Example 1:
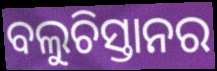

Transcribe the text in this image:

ବଲୁଚିସ୍ତାନର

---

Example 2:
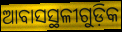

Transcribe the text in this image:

ଆବାସସ୍ଥଳୀଗୁଡ଼ିକ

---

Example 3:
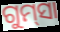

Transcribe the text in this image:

ଗୁମ୍‌ସା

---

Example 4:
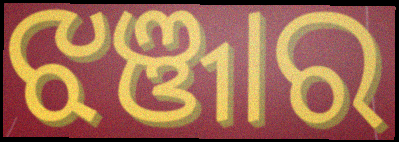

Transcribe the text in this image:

ଝଞ୍ଜାର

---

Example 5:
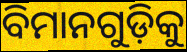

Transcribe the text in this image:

ବିମାନଗୁଡ଼ିକୁ